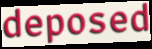
deposed